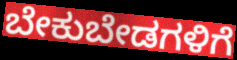
ಬೇಕುಬೇಡಗಳಿಗೆ